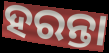
ହରନ୍ତା